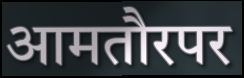
आमतौरपर